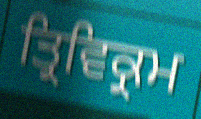
ਤ੍ਰਿਵਿਕ੍ਰਮ